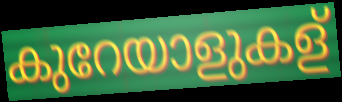
കുറേയാളുകള്